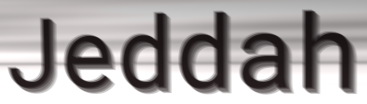
Jeddah